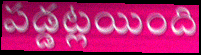
పడ్డట్లయింది